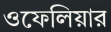
ওফেলিয়ার